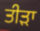
ਤੀੜਾ